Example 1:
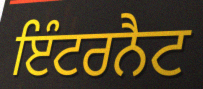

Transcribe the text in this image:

ਇੰਟਰਨੈਟ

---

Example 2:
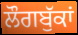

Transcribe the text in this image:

ਲੌਗਬੁੱਕਾਂ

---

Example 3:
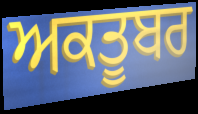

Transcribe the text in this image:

ਅਕਤੂਬਰ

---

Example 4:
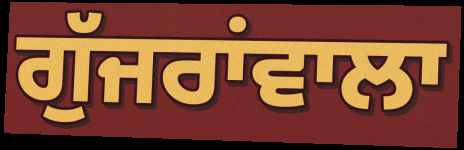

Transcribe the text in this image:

ਗੁੱਜਰਾਂਵਾਲਾ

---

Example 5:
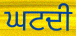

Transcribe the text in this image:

ਘਟਦੀ